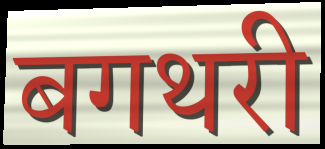
बगथरी